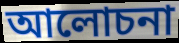
আলোচনা